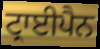
ਟ੍ਰਾਈਪੈਨ